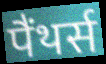
पैंथर्स